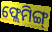
ଫ୍ଲେମିଙ୍ଗ୍